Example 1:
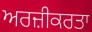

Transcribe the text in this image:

ਅਰਜ਼ੀਕਰਤਾ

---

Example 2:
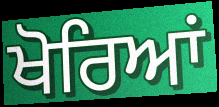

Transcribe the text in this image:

ਖੋਰਿਆਂ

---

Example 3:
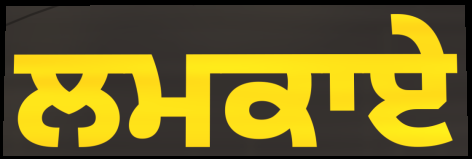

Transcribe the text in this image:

ਲਮਕਾਏ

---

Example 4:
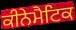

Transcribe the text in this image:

ਕੀਨੇਮੈਟਿਕ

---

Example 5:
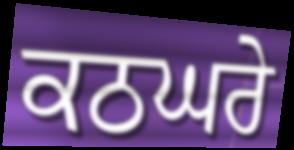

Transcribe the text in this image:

ਕਠਘਰੇ